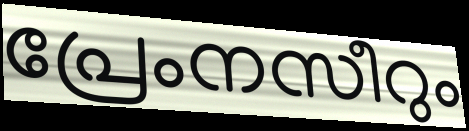
പ്രേംനസീറും